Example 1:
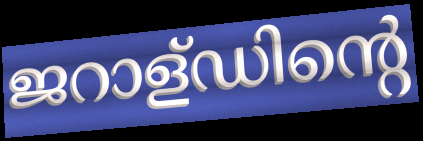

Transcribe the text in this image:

ജറാള്ഡിന്റെ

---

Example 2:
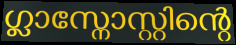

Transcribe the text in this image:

ഗ്ലാസ്നോസ്റ്റിന്റെ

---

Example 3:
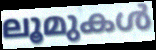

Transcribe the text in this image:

ലൂമുകൾ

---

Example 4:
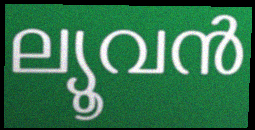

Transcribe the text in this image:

ല്യൂവൻ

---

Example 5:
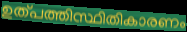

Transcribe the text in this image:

ഉത്പത്തിസ്ഥിതികാരണം